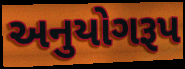
અનુયોગરૂપ